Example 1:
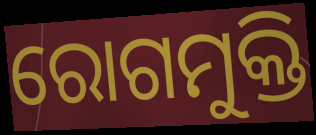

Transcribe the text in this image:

ରୋଗମୁକ୍ତି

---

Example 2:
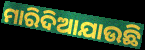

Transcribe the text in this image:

ମାରିଦିଆଯାଉଛି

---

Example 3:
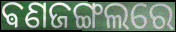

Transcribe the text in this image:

ଵଣଜଙ୍ଗଲରେ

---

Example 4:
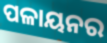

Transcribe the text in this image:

ପଳାୟନର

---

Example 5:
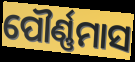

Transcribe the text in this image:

ପୌର୍ଣ୍ଣମାସ